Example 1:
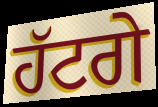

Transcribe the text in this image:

ਹੱਟਗੇ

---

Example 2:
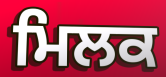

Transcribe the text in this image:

ਮਿਲਕ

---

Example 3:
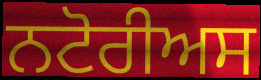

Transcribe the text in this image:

ਨਟੋਰੀਅਸ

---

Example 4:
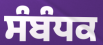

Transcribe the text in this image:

ਸੰਬੰਧਕ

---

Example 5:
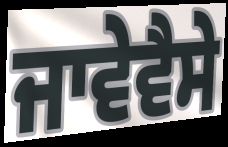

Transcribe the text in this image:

ਜਾਵੇਵੈਸੇ